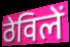
ठेविलें